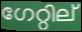
ഗേറ്റില്